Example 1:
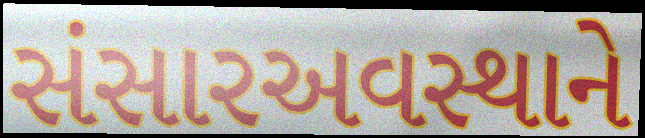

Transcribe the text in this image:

સંસારઅવસ્થાને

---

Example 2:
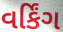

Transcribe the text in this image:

વર્કિંગ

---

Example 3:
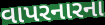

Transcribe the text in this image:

વાપરનારના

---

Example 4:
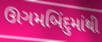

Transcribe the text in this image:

ઊગમબિંદુમાંથી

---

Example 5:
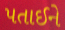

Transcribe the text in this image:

પતાઈને